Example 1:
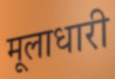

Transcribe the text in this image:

मूलाधारी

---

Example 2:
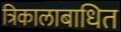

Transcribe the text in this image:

त्रिकालाबाधित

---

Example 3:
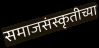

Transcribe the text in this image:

समाजसंस्कृतीच्या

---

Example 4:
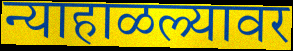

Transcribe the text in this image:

न्याहाळल्यावर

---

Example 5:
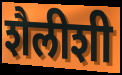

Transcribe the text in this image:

शैलीशी